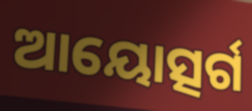
ଆୟୋତ୍ସର୍ଗ